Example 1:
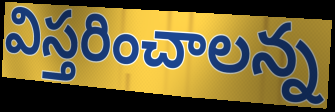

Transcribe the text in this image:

విస్తరించాలన్న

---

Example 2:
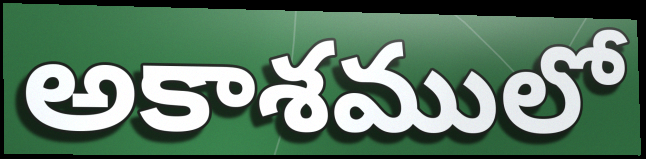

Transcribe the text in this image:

అకాశములో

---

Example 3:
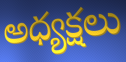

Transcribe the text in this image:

అధ్యక్షలు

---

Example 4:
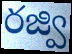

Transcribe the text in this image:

రజ్వి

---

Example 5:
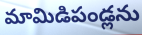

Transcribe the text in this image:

మామిడిపండ్లను